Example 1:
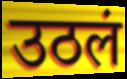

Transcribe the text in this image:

उठलं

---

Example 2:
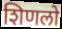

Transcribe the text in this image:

शिणलो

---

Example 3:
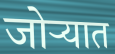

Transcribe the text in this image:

जोऱ्यात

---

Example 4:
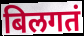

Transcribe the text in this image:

बिलगतं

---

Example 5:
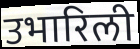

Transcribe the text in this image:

उभारिली